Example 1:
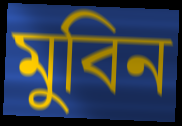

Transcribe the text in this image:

মুবিন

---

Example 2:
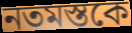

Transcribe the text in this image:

নতমস্তকে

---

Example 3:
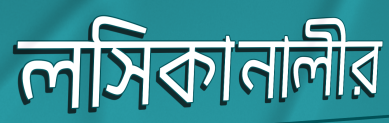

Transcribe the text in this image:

লসিকানালীর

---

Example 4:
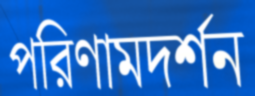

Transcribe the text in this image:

পরিণামদর্শন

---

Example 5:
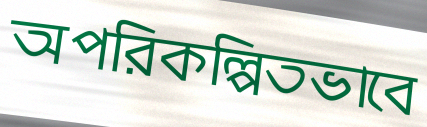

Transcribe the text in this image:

অপরিকল্পিতভাবে